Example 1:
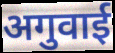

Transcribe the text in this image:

अगुवाई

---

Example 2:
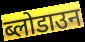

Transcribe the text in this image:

ब्लोडाउन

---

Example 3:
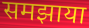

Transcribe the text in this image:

समझाया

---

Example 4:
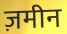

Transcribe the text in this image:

ज़मीन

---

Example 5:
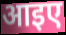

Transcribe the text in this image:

आइए